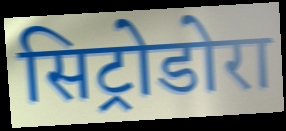
सिट्रोडोरा